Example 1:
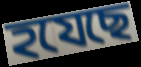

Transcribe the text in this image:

হযেছে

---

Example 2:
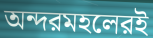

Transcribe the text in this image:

অন্দরমহলেরই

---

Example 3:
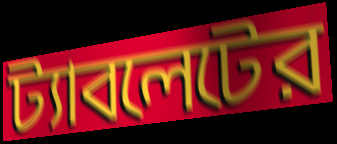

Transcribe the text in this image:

ট্যাবলেটের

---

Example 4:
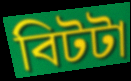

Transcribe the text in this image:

বিটটা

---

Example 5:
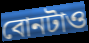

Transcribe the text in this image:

বোনটাও